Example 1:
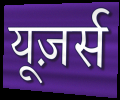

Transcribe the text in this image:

यूज़र्स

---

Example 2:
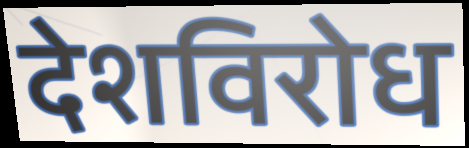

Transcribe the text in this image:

देशविरोध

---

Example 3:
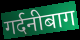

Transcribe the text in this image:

गर्दनीबाग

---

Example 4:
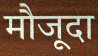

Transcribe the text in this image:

मौजूदा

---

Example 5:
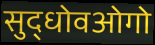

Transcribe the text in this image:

सुद्धोवओगो